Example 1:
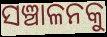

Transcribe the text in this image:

ସଞ୍ଚାଳନକୁ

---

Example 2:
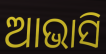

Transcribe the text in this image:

ଆଭାସି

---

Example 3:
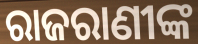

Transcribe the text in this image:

ରାଜରାଣୀଙ୍କ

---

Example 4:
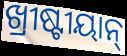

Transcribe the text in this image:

ଖ୍ରୀଷ୍ଟୀୟାନ୍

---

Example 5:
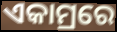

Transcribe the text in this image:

ଏକାମ୍ରରେ